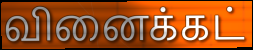
வினைக்கட்